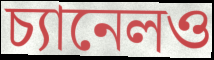
চ্যানেলও